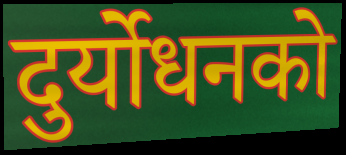
दुर्योधनको